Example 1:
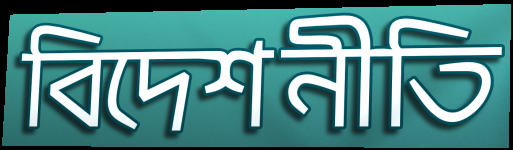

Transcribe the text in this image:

বিদেশনীতি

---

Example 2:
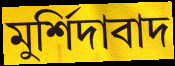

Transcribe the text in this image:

মুর্শিদাবাদ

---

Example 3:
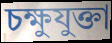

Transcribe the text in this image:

চক্ষুযুক্তা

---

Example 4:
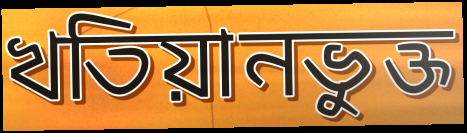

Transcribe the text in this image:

খতিয়ানভুক্ত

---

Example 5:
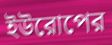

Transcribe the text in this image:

ইউরোপের